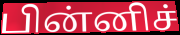
பின்னிச்